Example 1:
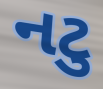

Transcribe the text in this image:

નટુ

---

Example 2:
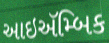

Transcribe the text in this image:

આઇઍમ્બિક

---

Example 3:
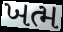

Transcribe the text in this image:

ખત્મ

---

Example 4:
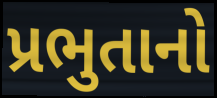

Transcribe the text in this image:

પ્રભુતાનો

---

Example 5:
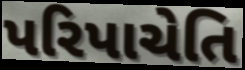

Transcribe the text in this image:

પરિપાચેતિ